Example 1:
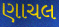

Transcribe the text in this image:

ણાચલ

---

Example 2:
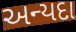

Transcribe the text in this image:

અન્યદા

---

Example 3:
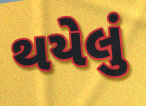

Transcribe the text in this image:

થયેલું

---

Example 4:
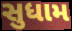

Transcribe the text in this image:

સુધામ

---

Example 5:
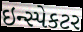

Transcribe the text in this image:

ઇન્સ્પેકટર